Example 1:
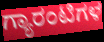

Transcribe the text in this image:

ಗ್ಯಾರಂಟಿಗಳ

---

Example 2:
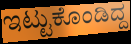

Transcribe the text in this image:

ಇಟ್ಟುಕೊಂಡಿದ್ದ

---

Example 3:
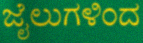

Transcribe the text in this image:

ಜೈಲುಗಳಿಂದ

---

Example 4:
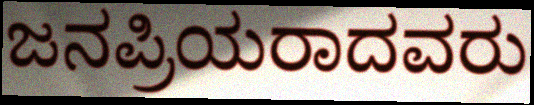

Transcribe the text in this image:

ಜನಪ್ರಿಯರಾದವರು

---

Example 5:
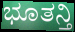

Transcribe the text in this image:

ಭೂತನ್ತಿ